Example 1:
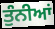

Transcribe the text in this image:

ਤੁੰਨੀਆਂ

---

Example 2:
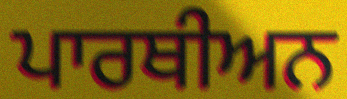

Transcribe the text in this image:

ਪਾਰਥੀਅਨ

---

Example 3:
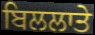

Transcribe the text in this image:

ਬਿਲਲਾਤੇ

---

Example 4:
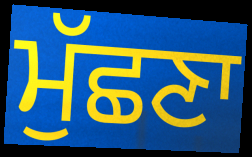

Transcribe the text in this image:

ਮੁੱਛਣਾ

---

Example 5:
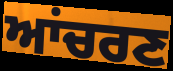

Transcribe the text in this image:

ਆਂਚਰਣ